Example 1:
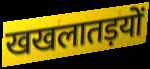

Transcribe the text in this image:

खखलातड़यों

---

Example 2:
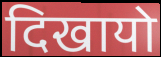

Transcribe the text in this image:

दिखायो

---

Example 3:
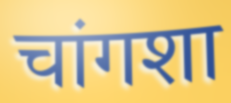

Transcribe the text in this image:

चांगशा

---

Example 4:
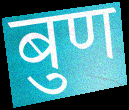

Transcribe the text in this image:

बुण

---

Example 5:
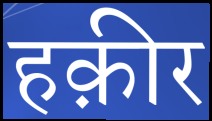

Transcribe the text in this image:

हक़ीर